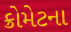
ક્રોમેટના